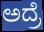
ಅದ್ರೆ